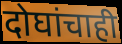
दोघांचाही